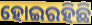
ହୋଇରହିଛି